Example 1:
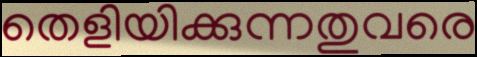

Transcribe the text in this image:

തെളിയിക്കുന്നതുവരെ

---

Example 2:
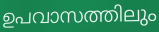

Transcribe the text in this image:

ഉപവാസത്തിലും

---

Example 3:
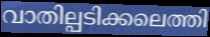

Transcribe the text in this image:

വാതില്പടിക്കലെത്തി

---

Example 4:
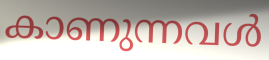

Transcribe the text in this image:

കാണുന്നവൾ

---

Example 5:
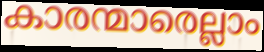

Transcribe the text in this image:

കാരന്മാരെല്ലാം